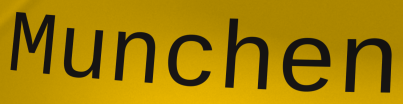
Munchen